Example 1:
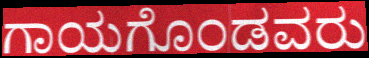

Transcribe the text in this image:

ಗಾಯಗೊಂಡವರು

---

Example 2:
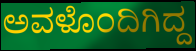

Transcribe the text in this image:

ಅವಳೊಂದಿಗಿದ್ದ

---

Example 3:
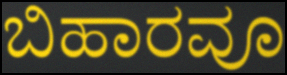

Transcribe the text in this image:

ಬಿಹಾರವೂ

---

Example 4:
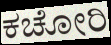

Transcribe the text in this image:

ಕಚೋರಿ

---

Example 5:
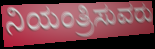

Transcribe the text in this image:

ನಿಯಂತ್ರಿಸುವರು